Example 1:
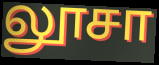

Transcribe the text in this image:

லூசா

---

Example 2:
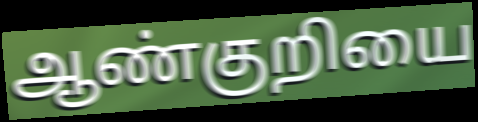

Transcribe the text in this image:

ஆண்குறியை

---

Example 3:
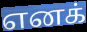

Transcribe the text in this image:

எனக்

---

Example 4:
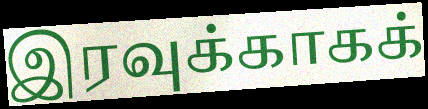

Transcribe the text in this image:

இரவுக்காகக்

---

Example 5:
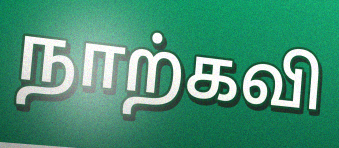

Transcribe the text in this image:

நாற்கவி